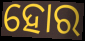
ହୋର